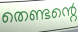
തെണ്ടന്റെ